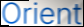
Orient